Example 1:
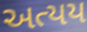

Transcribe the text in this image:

અત્યય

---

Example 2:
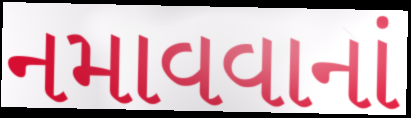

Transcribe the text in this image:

નમાવવાનાં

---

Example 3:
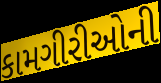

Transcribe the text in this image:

કામગીરીઓની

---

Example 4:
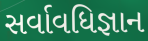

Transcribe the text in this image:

સર્વાવધિજ્ઞાન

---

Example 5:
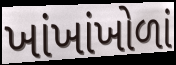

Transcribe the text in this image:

ખાંખાંખોળાં